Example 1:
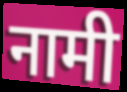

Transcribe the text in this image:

नामी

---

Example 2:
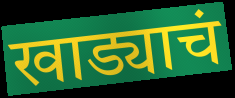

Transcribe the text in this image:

खाड्याचं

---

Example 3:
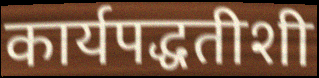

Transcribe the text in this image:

कार्यपद्धतीशी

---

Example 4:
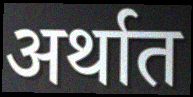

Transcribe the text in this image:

अर्थात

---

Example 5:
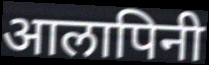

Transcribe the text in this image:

आलापिनी